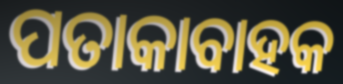
ପତାକାବାହକ